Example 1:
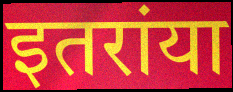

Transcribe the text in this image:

इतरांया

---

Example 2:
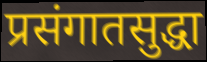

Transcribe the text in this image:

प्रसंगातसुद्धा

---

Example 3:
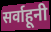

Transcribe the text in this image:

सर्वाहूनी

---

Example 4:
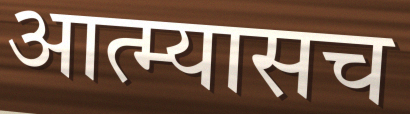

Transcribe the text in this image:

आत्म्यासच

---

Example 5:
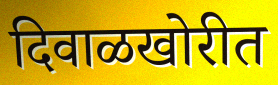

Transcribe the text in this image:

दिवाळखोरीत